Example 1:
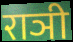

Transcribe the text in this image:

राञी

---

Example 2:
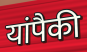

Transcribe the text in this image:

यांपैकी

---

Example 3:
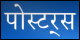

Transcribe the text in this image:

पोस्टर्स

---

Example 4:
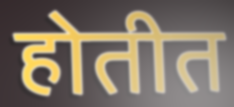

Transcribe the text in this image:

होतीत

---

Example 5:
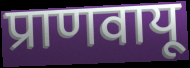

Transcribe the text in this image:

प्राणवायू